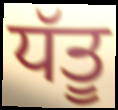
ਧੱਤੂ